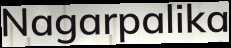
Nagarpalika